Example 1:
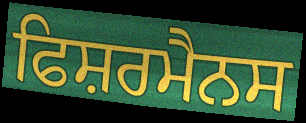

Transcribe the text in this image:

ਫਿਸ਼ਰਮੈਨਸ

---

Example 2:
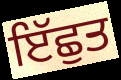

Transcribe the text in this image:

ਇੱਛੁਤ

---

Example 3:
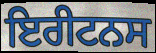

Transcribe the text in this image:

ਇਰੀਟਨਸ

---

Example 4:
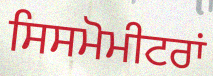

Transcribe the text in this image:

ਸਿਸਮੋਮੀਟਰਾਂ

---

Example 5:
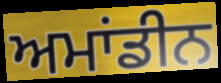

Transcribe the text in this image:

ਅਮਾਂਡੀਨ